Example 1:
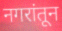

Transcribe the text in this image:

नगरांतून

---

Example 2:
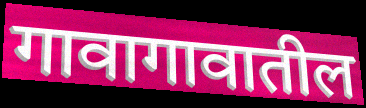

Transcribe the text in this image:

गावागावातील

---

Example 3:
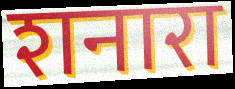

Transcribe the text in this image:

शनारा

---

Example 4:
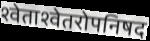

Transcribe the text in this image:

श्वेताश्वेतरोपनिषद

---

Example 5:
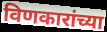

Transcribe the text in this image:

विणकारांच्या